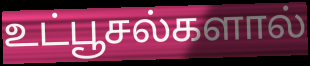
உட்பூசல்களால்